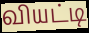
வியட்டி